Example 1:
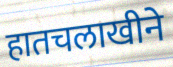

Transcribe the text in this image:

हातचलाखीने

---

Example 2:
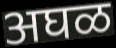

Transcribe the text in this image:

अघळ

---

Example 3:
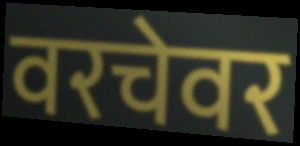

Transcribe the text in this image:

वरचेवर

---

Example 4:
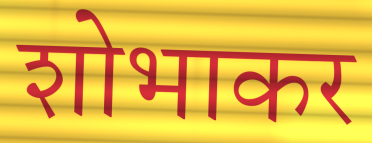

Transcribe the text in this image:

शोभाकर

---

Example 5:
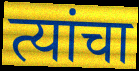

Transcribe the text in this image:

त्यांचा